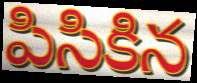
పిసికిన